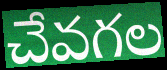
చేవగల